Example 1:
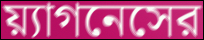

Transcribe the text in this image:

য়্যাগনেসের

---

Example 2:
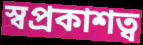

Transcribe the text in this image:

স্বপ্রকাশত্ব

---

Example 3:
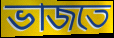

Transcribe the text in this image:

ভাজতে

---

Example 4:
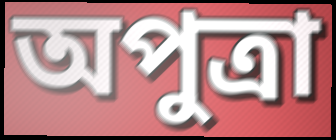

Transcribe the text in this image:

অপুত্রা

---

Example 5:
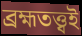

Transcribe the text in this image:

ব্রহ্মতত্ত্বই